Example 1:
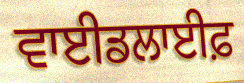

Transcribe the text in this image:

ਵਾਈਡਲਾਈਫ਼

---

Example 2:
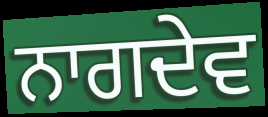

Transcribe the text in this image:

ਨਾਗਦੇਵ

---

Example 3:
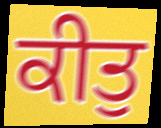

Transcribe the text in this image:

ਕੀਤੁ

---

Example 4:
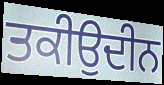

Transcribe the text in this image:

ਤਕੀਉਦੀਨ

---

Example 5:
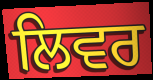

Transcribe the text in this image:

ਲਿਵਰ